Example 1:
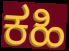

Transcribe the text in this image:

ಕಹಿ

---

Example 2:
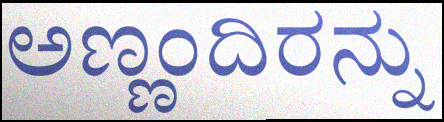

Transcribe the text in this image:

ಅಣ್ಣಂದಿರನ್ನು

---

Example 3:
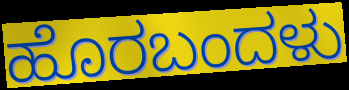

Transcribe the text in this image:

ಹೊರಬಂದಳು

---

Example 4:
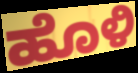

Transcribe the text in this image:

ಹೊಳಿ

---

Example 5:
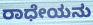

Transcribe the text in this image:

ರಾಧೇಯನು